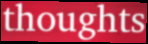
thoughts